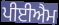
ਪੀਈਐਮ